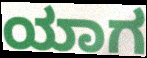
ಯಾಗ